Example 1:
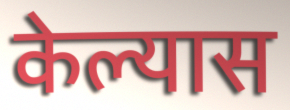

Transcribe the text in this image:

केल्यास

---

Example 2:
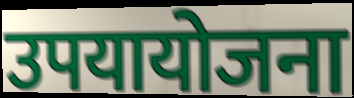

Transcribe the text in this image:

उपयायोजना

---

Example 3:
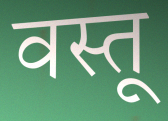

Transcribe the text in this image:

वस्तू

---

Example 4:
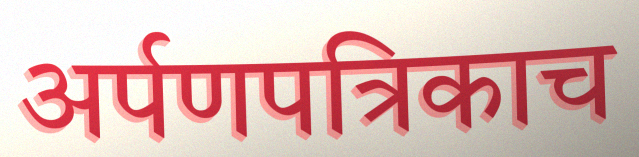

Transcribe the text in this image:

अर्पणपत्रिकाच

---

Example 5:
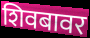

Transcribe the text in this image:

शिवबावर